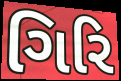
ગિરિ